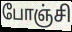
போஞ்சி